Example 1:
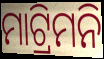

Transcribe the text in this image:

ମାଟ୍ରିମନି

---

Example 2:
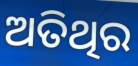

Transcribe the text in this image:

ଅତିଥିର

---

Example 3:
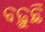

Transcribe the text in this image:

ବଢ଼ୁଛି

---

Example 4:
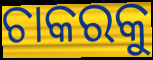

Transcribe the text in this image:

ଚାକରକୁ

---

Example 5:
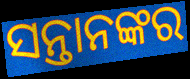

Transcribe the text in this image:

ସନ୍ତାନଙ୍କର